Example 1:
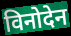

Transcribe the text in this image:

विनोदेन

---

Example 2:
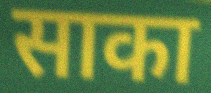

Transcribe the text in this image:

साका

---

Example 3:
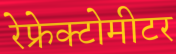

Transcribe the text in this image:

रेफ्रेक्टोमीटर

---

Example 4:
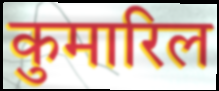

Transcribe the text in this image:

कुमारिल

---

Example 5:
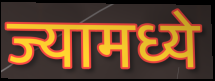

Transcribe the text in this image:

ज्यामध्ये